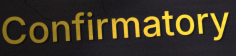
Confirmatory